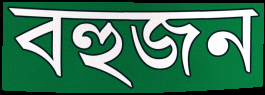
বহুজন